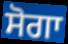
ਸੋਗਾ